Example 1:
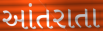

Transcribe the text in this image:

આંતરાતા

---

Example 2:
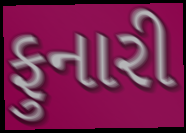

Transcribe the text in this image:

ફુનારી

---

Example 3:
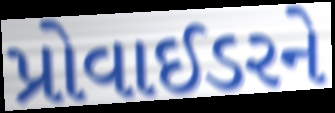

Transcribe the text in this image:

પ્રોવાઈડરને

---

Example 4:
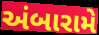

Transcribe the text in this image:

અંબારામે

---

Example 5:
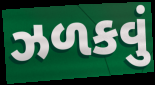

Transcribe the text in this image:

ઝળકવું